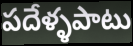
పదేళ్ళపాటు